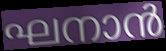
ഘനാൻ